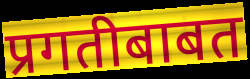
प्रगतीबाबत